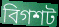
বিগশট